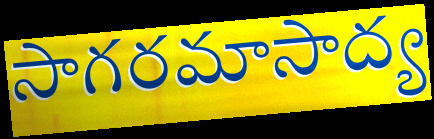
సాగరమాసాద్య